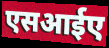
एसआईए